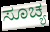
ಸೂಚ್ಯ